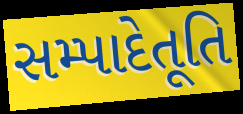
સમ્પાદેતૂતિ